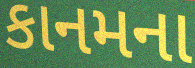
કાનમના